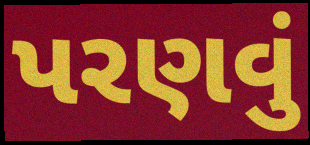
પરણવું